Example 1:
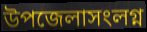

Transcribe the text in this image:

উপজেলাসংলগ্ন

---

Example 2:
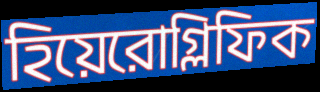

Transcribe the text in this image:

হিয়েরোগ্লিফিক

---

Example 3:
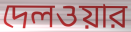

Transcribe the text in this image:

দেলওয়ার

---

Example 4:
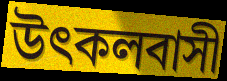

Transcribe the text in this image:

উৎকলবাসী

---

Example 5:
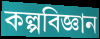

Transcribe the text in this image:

কল্পবিজ্ঞান